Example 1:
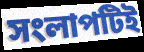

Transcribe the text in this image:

সংলাপটিই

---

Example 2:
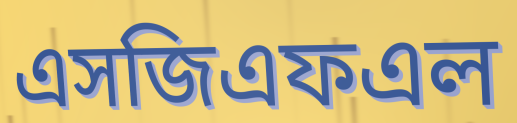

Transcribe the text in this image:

এসজিএফএল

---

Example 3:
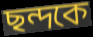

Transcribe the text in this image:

ছন্দকে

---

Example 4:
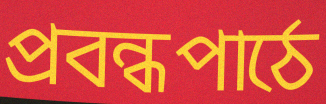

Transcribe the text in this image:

প্রবন্ধপাঠে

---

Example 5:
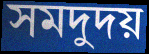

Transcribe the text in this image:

সমদুদয়